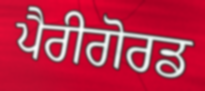
ਪੈਰੀਗੋਰਡ